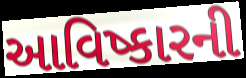
આવિષ્કારની